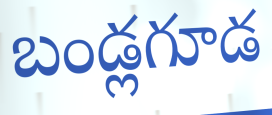
బండ్లగూడ